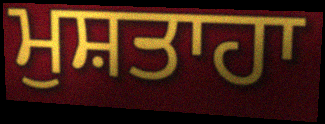
ਮੁਸ਼ਤਾਹਾ